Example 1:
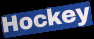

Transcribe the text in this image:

Hockey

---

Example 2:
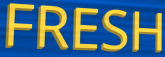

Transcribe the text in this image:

FRESH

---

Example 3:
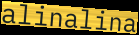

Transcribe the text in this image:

alinalina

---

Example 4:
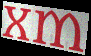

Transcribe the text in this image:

xm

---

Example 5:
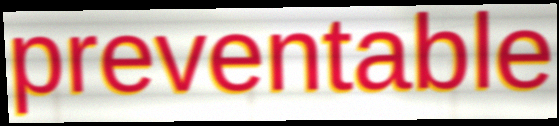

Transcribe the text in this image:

preventable